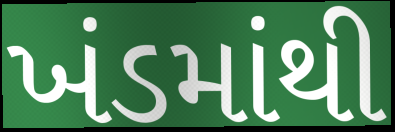
ખંડમાંથી